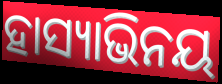
ହାସ୍ୟାଭିନୟ